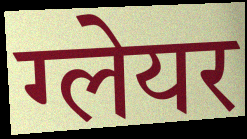
ग्लेयर